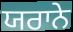
ਯਰਾਨੇ